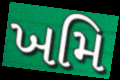
ખમિ